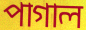
পাগাল